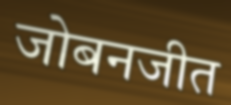
जोबनजीत